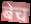
बेच